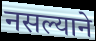
नसल्याने